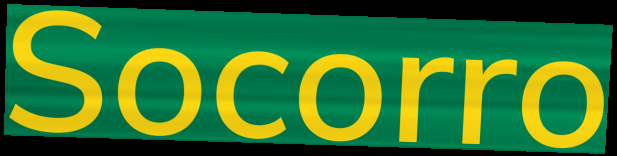
Socorro